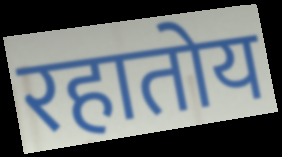
रहातोय